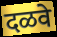
दळवे